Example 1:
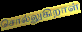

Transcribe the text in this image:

சொல்லுகிறாள்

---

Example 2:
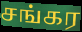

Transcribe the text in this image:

சங்கர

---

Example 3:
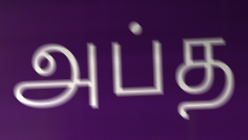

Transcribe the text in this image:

அப்த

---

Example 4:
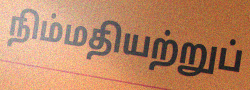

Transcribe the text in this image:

நிம்மதியற்றுப்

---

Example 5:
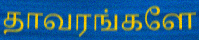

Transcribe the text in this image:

தாவரங்களே